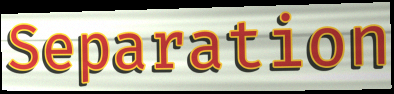
Separation